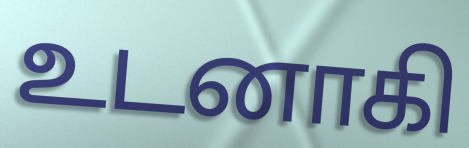
உடனாகி